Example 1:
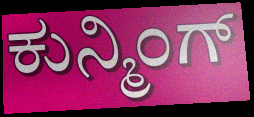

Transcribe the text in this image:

ಕುನ್ಮಿಂಗ್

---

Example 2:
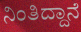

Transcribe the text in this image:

ನಿಂತಿದ್ದಾನೆ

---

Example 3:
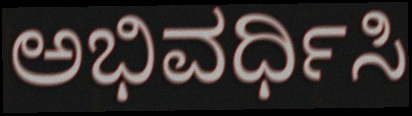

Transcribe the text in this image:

ಅಭಿವರ್ಧಿಸಿ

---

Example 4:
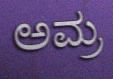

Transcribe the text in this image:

ಅಮ್ರ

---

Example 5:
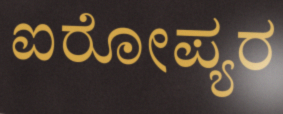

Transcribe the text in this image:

ಐರೋಪ್ಯರ